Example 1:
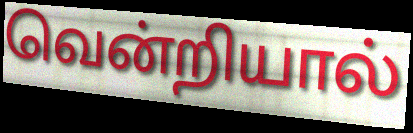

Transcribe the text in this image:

வென்றியால்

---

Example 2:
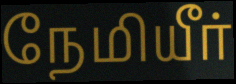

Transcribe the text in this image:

நேமியீர்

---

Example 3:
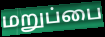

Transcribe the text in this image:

மறுப்பை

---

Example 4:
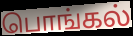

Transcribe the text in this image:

பொங்கல்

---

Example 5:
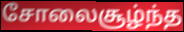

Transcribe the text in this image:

சோலைசூழ்ந்த